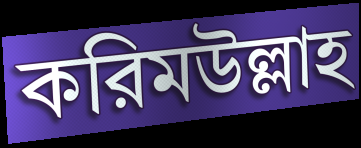
করিমউল্লাহ